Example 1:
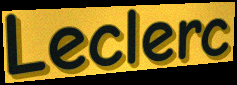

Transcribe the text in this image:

Leclerc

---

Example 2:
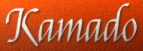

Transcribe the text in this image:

Kamado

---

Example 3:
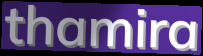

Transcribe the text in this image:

thamira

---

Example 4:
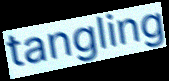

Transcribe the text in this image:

tangling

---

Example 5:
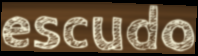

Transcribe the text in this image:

escudo